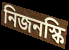
নিজনস্কি